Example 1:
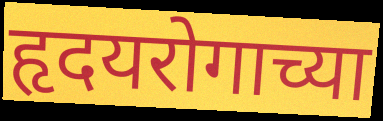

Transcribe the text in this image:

हृदयरोगाच्या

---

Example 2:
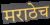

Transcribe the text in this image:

मराठेच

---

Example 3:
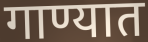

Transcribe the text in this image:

गाण्यात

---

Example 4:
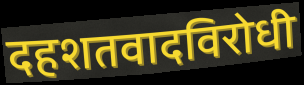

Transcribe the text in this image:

दहशतवादविरोधी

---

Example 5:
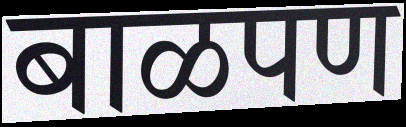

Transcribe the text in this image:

बाळपण